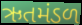
ઋતમંડળ